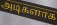
அடிகளாக